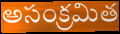
అసంక్రమిత